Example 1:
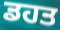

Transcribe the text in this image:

ਡਹਤ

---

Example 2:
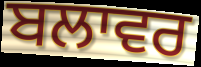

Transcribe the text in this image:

ਬਲਾਵਰ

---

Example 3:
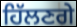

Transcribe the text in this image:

ਹਿੱਲਣਗੇ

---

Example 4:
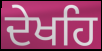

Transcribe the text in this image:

ਦੇਖਹਿ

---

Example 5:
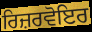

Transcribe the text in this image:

ਰਿਜ਼ਰਵੋਇਰ